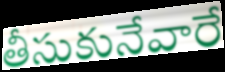
తీసుకునేవారే